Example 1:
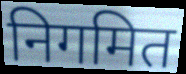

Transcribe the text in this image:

निगमित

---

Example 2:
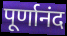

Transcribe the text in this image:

पूर्णानंद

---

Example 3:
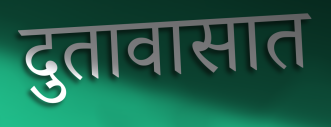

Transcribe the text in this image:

दुतावासात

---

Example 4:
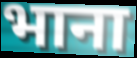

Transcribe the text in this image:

भाना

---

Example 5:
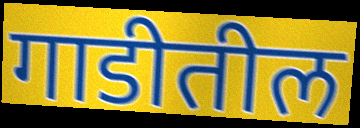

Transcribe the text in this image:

गाडीतील